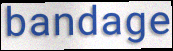
bandage